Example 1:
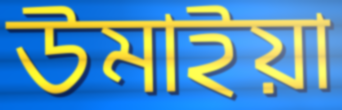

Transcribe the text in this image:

উমাইয়া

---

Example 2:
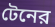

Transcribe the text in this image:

টেনের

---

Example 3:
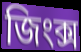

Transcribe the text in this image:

জিংক্স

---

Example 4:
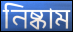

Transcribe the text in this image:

নিষ্কাম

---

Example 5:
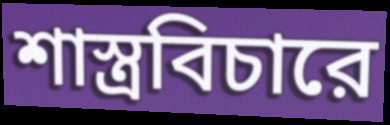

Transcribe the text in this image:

শাস্ত্রবিচারে